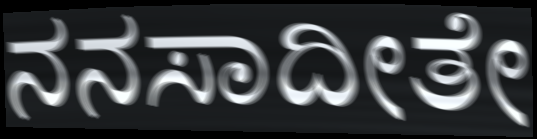
ನನಸಾದೀತೇ